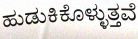
ಹುಡುಕಿಕೊಳ್ಳುತ್ತವೆ